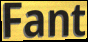
Fant